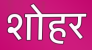
शोहर